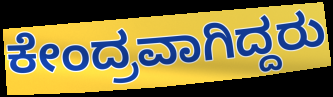
ಕೇಂದ್ರವಾಗಿದ್ದರು